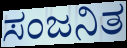
ಸಂಜನಿತ